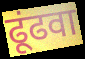
ढूंढवा